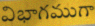
విభాగముగా